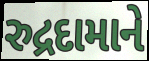
રુદ્રદામાને